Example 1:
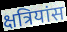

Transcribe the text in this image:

क्षत्रियांस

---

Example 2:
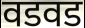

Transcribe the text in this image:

वडवड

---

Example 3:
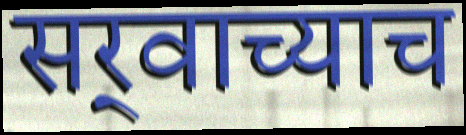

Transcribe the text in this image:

सर्वाच्याच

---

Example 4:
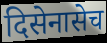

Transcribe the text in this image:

दिसेनासेच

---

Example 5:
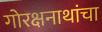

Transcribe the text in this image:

गोरक्षनाथांचा